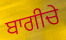
ਬਾਗੀਚੇ